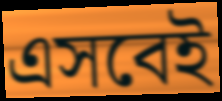
এসবেই